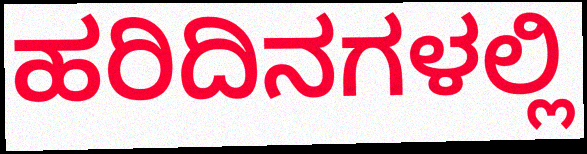
ಹರಿದಿನಗಳಲ್ಲಿ